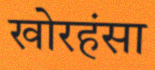
खोरहंसा